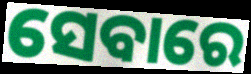
ସେବାରେ